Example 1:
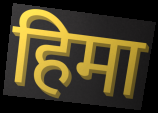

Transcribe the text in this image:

हिमा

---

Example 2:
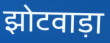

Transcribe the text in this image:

झोटवाड़ा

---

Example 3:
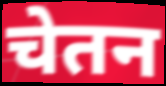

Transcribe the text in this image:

चेतन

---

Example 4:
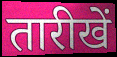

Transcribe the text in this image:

तारीखें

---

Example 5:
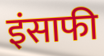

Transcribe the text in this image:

इंसाफी